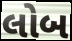
લોબ